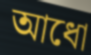
আধো